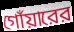
গোঁয়ারের